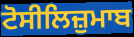
ਟੋਸੀਲਿਜ਼ੁਮਾਬ